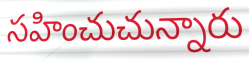
సహించుచున్నారు